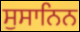
ਸੁਸਾਨਿਨ